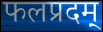
फलप्रदम्